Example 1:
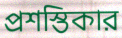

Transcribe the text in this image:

প্রশস্তিকার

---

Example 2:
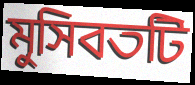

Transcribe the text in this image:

মুসিবতটি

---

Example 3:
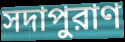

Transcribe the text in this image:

সদাপুরাণ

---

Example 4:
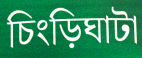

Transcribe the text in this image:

চিংড়িঘাটা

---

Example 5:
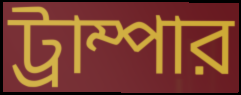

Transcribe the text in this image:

ট্রাম্পার